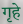
गृहे